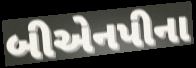
બીએનપીના